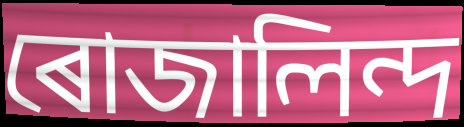
ৰোজালিন্দ